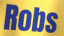
Robs